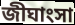
জীঘাংসা